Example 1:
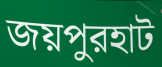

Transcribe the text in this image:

জয়পুরহাট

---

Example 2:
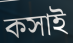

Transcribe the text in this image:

কসাই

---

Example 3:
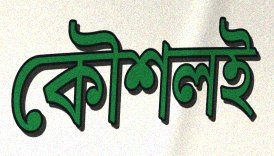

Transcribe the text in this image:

কৌশলই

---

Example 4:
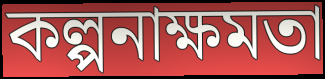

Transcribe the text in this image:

কল্পনাক্ষমতা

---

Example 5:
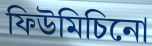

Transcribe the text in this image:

ফিউমিচিনো